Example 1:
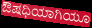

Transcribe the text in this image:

ಔಷಧಿಯಾಗಿಯೂ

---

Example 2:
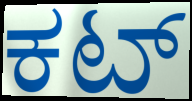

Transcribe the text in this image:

ಕಟ್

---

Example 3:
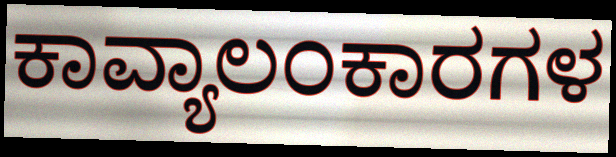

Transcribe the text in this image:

ಕಾವ್ಯಾಲಂಕಾರಗಳ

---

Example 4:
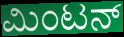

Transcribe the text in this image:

ಮಿಂಟನ್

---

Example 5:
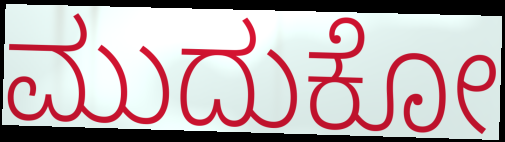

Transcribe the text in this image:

ಮುದುಕೋ